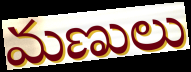
మణులు